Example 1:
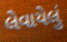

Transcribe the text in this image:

લેવાયેલું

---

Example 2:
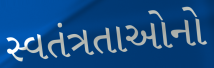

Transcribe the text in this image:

સ્વતંત્રતાઓનો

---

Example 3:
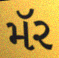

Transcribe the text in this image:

મૅર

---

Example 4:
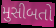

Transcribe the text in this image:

મુસીબતો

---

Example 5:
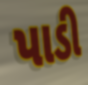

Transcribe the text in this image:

પાડી